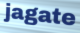
jagate